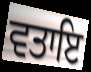
ਵਤਾਇ